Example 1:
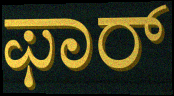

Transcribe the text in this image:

ಫಾರ್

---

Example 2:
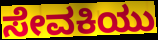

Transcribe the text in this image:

ಸೇವಕಿಯು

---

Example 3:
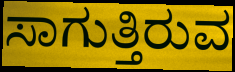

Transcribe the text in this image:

ಸಾಗುತ್ತಿರುವ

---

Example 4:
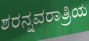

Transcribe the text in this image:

ಶರನ್ನವರಾತ್ರಿಯ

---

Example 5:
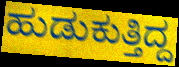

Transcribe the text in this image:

ಹುಡುಕುತ್ತಿದ್ದ